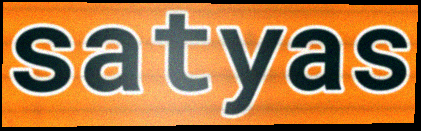
satyas